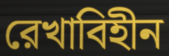
রেখাবিহীন